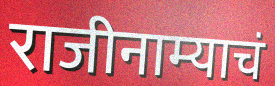
राजीनाम्याचं